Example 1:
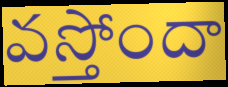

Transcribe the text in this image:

వస్తోందా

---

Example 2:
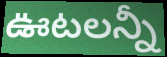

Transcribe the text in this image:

ఊటలన్నీ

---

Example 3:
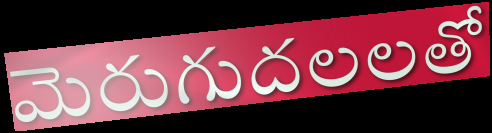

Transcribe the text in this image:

మెరుగుదలలతో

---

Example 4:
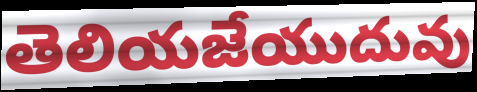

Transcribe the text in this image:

తెలియజేయుదువు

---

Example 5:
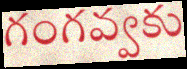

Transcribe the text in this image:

గంగవ్వకు